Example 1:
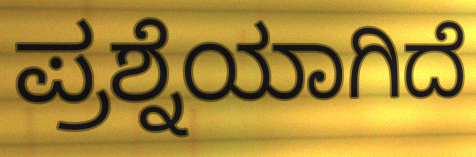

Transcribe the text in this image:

ಪ್ರಶ್ನೆಯಾಗಿದೆ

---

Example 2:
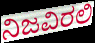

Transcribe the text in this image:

ನಿಜವಿರಲಿ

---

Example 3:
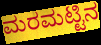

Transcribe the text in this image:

ಮರಮಟ್ಟಿನ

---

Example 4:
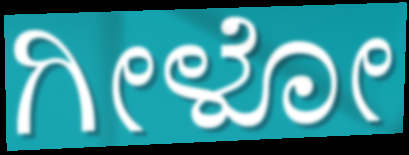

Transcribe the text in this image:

ಗೀಳೋ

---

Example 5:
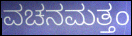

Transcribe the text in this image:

ವಚನಮತ್ತಂ